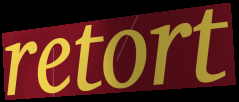
retort